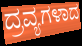
ದ್ರವ್ಯಗಳಾದ